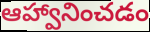
ఆహ్వానించడం